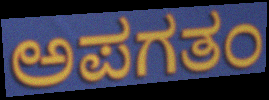
ಅಪಗತಂ